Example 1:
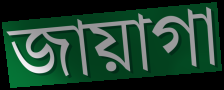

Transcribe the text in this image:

জায়াগা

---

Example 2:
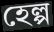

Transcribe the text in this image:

হেল্প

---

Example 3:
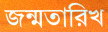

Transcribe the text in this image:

জন্মতারিখ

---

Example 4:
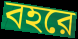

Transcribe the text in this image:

বহরে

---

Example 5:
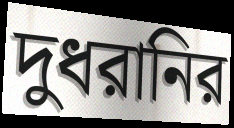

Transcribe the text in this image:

দুধরানির